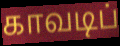
காவடிப்